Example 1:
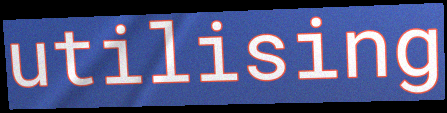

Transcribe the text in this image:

utilising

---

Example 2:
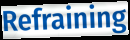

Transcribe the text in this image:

Refraining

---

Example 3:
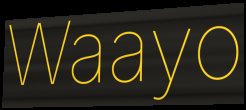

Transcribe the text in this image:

Waayo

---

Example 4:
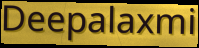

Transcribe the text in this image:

Deepalaxmi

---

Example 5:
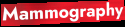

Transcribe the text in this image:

Mammography